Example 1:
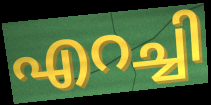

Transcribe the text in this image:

എറച്ചി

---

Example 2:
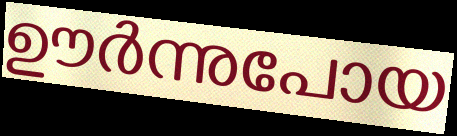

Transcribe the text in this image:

ഊർന്നുപോയ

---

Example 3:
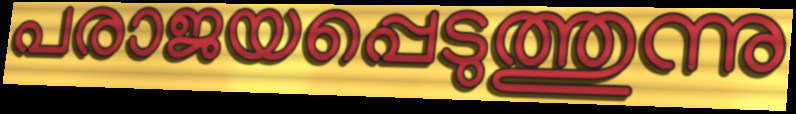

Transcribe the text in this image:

പരാജയപ്പെടുത്തുന്നു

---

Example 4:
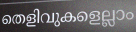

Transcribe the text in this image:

തെളിവുകളെല്ലാം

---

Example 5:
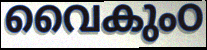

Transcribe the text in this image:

വൈകുംഠ